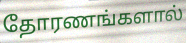
தோரணங்களால்